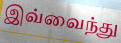
இவ்வைந்து